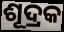
ଶୂଦ୍ରକ